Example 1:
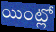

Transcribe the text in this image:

యింట్లో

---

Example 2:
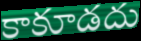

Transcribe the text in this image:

కాకూడదు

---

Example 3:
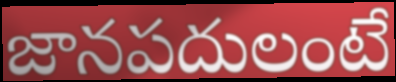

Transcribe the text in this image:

జానపదులంటే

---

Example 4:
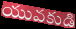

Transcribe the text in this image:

యువకుడి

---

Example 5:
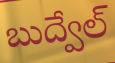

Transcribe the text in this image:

బుద్వేల్